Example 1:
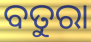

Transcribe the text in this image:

ବତୁରା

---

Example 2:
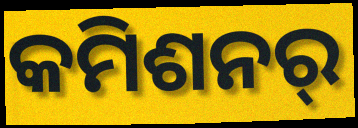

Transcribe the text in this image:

କମିଶନର୍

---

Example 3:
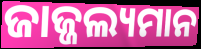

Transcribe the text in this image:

ଜାଜ୍ଜଲ୍ୟମାନ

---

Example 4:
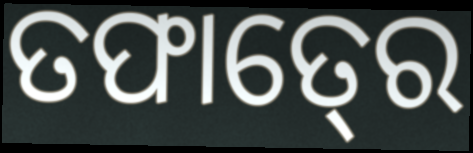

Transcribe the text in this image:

ତଫାତ୍‍ରେ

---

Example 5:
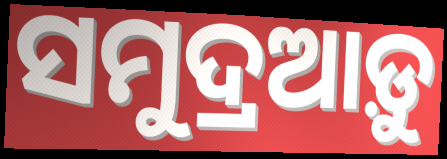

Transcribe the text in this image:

ସମୁଦ୍ରଆଡ଼ୁ